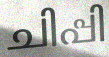
ചിപ്പി